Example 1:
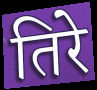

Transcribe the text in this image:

तिरे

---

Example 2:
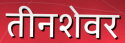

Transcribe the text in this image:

तीनशेवर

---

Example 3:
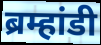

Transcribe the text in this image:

ब्रम्हांडी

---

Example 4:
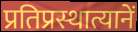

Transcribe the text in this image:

प्रतिप्रस्थात्यानें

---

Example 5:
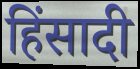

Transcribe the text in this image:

हिंसादी